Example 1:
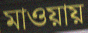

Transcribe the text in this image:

মাওয়ায়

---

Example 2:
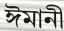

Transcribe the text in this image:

ঈমানী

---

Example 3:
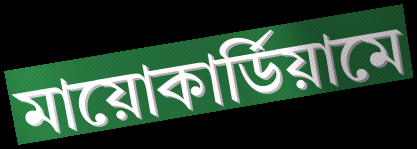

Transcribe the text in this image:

মায়োকার্ডিয়ামে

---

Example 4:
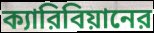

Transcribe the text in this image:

ক্যারিবিয়ানের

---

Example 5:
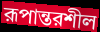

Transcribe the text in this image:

রূপান্তরশীল